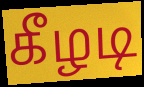
கீழடி